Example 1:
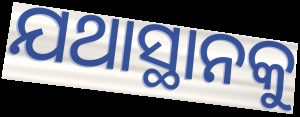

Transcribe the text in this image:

ଯଥାସ୍ଥାନକୁ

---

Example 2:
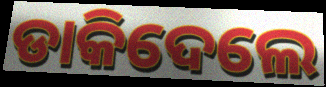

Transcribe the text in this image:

ଡାକିଦେଲେ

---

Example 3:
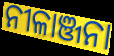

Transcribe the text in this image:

ନୀଳାଞ୍ଜନା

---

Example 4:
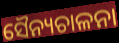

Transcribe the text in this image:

ସୈନ୍ୟଚାଳନା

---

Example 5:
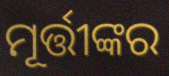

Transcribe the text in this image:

ମୂର୍ତ୍ତୀଙ୍କର